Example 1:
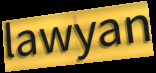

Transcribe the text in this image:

lawyan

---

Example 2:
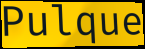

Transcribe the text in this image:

Pulque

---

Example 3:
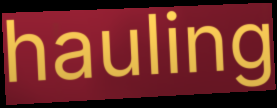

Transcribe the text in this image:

hauling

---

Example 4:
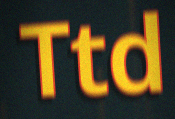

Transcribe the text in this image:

Ttd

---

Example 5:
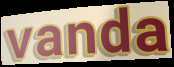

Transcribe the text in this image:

vanda